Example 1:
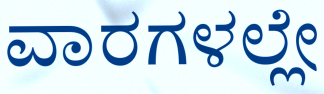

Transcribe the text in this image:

ವಾರಗಳಲ್ಲೇ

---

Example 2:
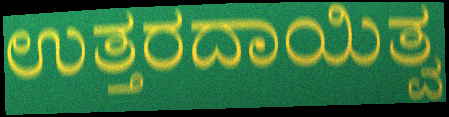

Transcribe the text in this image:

ಉತ್ತರದಾಯಿತ್ವ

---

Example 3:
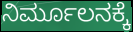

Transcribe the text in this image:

ನಿರ್ಮೂಲನಕ್ಕೆ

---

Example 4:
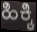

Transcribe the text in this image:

ಹಿಕ್ಕಿ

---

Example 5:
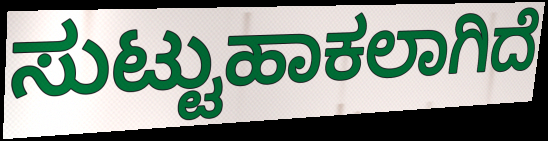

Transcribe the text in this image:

ಸುಟ್ಟುಹಾಕಲಾಗಿದೆ